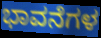
ಭಾವನೆಗಳ